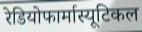
रेडियोफार्मास्यूटिकल